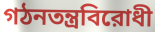
গঠনতন্ত্রবিরোধী